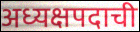
अध्यक्षपदाची